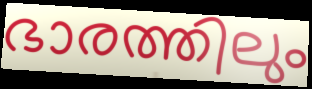
ഭാരത്തിലും